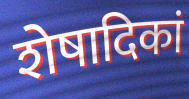
शेषादिकां